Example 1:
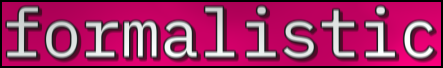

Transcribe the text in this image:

formalistic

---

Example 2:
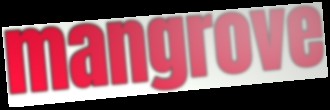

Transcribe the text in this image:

mangrove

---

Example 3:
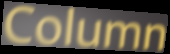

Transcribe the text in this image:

Column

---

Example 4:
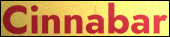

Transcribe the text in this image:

Cinnabar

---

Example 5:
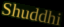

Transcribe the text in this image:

Shuddhi